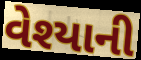
વેશ્યાની